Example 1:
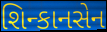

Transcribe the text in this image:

શિન્કાનસેન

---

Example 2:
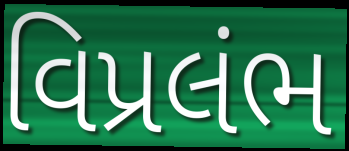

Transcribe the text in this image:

વિપ્રલંભ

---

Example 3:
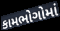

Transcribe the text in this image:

કામભોગોમાં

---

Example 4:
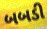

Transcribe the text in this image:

બબડી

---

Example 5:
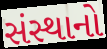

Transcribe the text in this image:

સંસ્થાનો